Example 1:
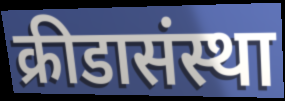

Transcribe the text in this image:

क्रीडासंस्था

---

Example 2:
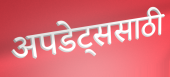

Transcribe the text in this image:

अपडेट्ससाठी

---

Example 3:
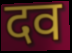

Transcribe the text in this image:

दव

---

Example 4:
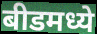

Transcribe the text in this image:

बीडमध्ये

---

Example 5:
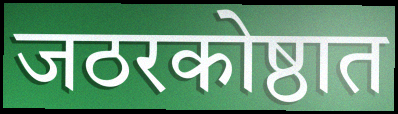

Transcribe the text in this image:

जठरकोष्ठात